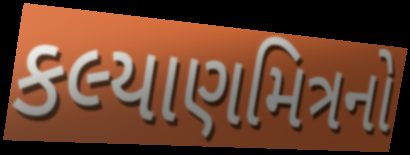
કલ્યાણમિત્રનો